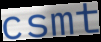
csmt